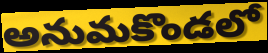
అనుమకొండలో